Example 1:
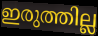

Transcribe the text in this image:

ഇരുത്തില്ല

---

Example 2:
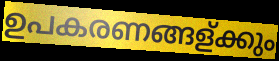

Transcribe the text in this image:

ഉപകരണങ്ങള്ക്കും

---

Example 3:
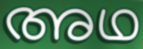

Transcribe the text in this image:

അഥ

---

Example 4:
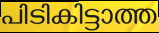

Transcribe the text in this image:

പിടികിട്ടാത്ത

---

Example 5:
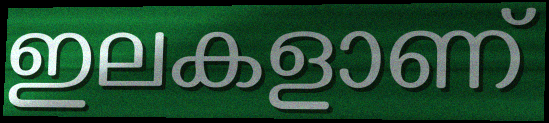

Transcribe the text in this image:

ഇലകളാണ്